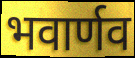
भवार्णव